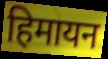
हिमायन